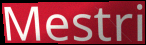
Mestri